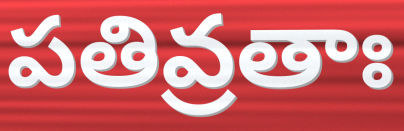
పతివ్రతాః